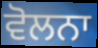
ਵੋਲਨਾ